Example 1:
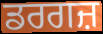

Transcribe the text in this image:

ਡਰਗਜ਼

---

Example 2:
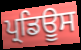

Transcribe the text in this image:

ਪ੍ਰਡਿਊਸ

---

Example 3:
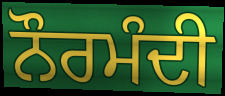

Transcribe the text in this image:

ਨੌਰਮੰਦੀ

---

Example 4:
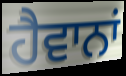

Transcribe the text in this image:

ਹੈਵਾਨਾਂ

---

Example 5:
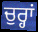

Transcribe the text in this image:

ਚੁਰ੍ਹਾਂ